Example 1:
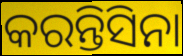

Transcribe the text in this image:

କରନ୍ତିସିନା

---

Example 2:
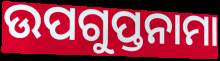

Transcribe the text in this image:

ଉପଗୁପ୍ତନାମା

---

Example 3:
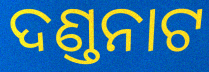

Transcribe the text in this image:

ଦଣ୍ଡନାଟ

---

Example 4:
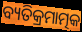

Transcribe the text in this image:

ବ୍ୟତିକ୍ରମାତ୍ମକ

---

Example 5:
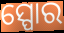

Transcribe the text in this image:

ସ୍ପୋର